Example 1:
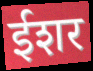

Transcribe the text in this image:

ईशर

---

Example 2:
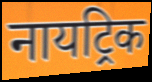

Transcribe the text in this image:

नायट्रिक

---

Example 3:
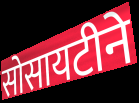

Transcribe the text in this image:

सोसायटीने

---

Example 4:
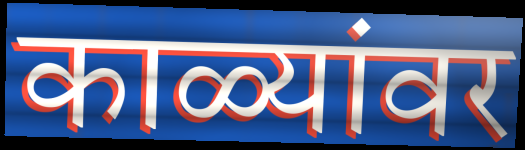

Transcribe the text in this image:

काळ्यांवर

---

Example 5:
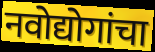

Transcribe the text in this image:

नवोद्योगांचा